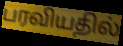
பரவியதில்